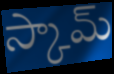
స్కామ్